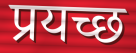
प्रयच्छ